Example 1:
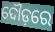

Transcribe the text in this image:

ଦୌଡ଼ରେ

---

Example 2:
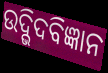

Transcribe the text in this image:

ଉଦ୍ଭିଦବିଜ୍ଞାନ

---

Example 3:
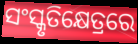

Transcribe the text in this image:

ସଂସ୍କୃତିକ୍ଷେତ୍ରରେ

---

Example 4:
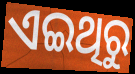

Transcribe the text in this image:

ଏଇଥିରୁ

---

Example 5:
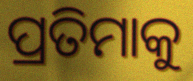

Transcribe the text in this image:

ପ୍ରତିମାକୁ